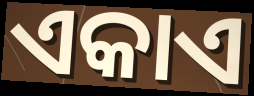
ଏକାଏ